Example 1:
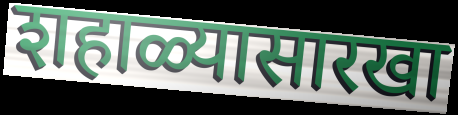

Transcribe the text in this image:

शहाळ्यासारखा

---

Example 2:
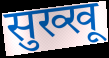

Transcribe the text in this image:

सुख्खू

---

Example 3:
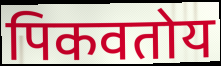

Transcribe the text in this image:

पिकवतोय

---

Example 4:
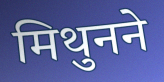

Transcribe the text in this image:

मिथुनने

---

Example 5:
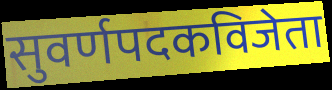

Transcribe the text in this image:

सुवर्णपदकविजेता